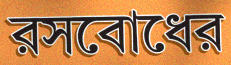
রসবোধের